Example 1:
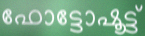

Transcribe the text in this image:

ഫോട്ടോഷൂട്ട്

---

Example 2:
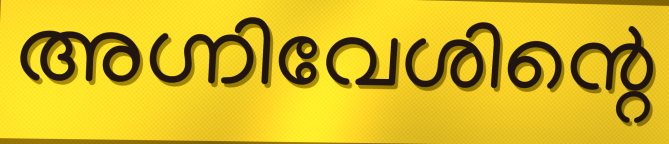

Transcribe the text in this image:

അഗ്നിവേശിന്റെ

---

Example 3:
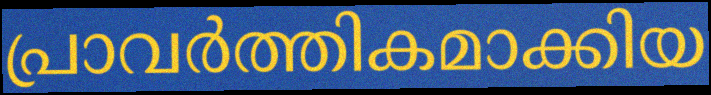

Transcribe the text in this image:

പ്രാവർത്തികമാക്കിയ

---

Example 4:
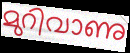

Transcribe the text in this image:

മുറിവാണു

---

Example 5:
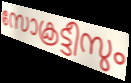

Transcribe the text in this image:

സോക്രട്ടീസും